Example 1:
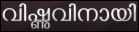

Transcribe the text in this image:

വിഷ്ണുവിനായി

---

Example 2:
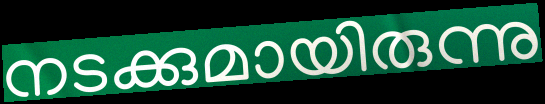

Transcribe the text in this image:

നടക്കുമായിരുന്നു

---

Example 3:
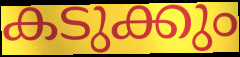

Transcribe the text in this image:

കടുക്കും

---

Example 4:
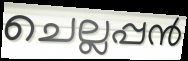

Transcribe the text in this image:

ചെല്ലപ്പൻ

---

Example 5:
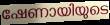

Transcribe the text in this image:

ഷേണായിയുടെ